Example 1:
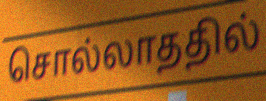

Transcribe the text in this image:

சொல்லாததில்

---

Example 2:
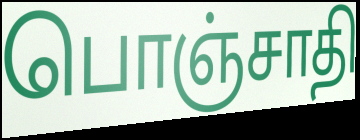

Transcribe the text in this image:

பொஞ்சாதி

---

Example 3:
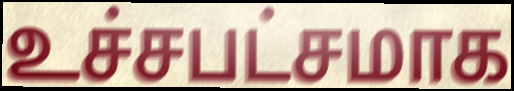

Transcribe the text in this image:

உச்சபட்சமாக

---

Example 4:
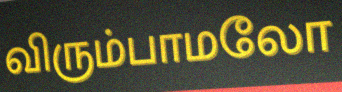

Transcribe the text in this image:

விரும்பாமலோ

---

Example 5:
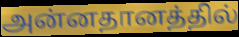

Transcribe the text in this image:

அன்னதானத்தில்